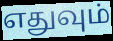
எதுவும்